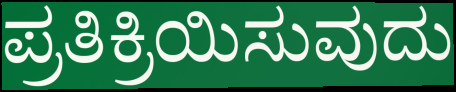
ಪ್ರತಿಕ್ರಿಯಿಸುವುದು